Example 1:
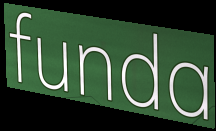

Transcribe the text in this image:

funda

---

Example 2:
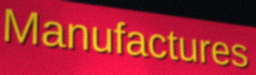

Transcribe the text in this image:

Manufactures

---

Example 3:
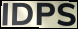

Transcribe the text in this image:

IDPS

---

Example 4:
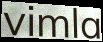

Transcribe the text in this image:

vimla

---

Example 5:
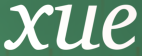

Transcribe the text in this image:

xue